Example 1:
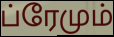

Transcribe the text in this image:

ப்ரேமும்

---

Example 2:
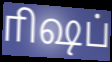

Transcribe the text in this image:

ரிஷப்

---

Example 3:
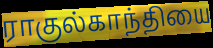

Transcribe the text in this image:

ராகுல்காந்தியை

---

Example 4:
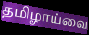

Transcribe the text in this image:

தமிழாய்வை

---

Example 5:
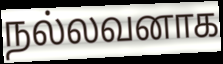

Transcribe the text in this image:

நல்லவனாக